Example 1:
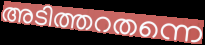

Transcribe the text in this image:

അടിത്തറതന്നെ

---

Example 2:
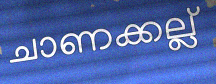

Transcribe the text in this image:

ചാണക്കല്ല്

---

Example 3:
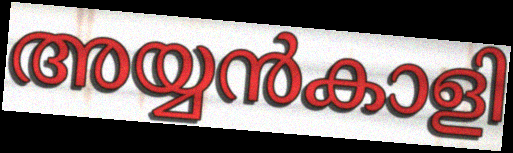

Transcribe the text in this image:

അയ്യൻകാളി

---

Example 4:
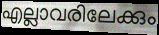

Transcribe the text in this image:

എല്ലാവരിലേക്കും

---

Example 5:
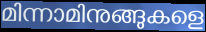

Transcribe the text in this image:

മിന്നാമിനുങ്ങുകളെ